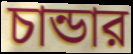
চান্ডার